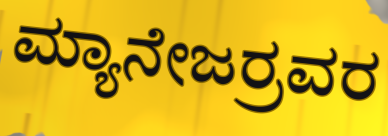
ಮ್ಯಾನೇಜರ್ರವರ